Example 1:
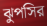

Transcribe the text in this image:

ঝুপসির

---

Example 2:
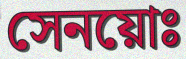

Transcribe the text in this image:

সেনয়োঃ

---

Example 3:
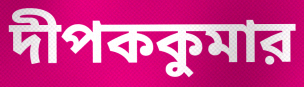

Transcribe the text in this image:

দীপককুমার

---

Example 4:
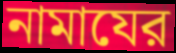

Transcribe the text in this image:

নামাযের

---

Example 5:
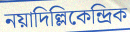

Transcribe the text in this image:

নয়াদিল্লিকেন্দ্রিক